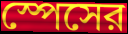
স্পেসের